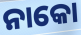
ନାକୋ